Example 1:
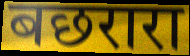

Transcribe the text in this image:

बछरारा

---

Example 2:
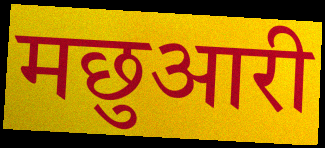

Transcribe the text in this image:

मछुआरी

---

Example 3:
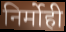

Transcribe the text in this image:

निर्मोही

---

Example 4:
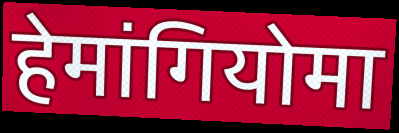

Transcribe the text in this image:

हेमांगियोमा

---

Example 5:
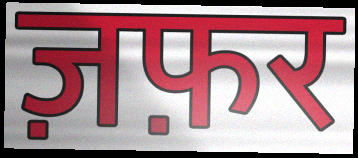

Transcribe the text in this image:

ज़फ़र